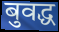
बुवद्ध